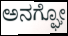
ಅನಗ್ಘೋ